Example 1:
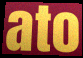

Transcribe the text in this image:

ato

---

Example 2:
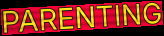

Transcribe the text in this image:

PARENTING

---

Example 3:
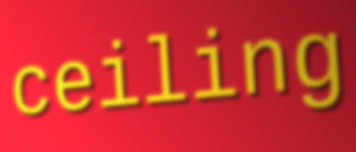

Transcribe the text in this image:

ceiling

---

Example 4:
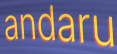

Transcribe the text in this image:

andaru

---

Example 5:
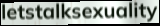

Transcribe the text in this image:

letstalksexuality